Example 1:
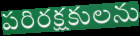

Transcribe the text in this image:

పరిరక్షకులను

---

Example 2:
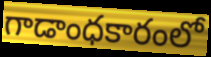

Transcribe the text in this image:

గాడాంధకారంలో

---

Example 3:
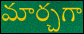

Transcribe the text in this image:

మార్చగా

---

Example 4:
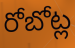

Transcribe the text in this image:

రోబోట్ల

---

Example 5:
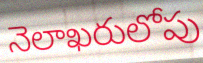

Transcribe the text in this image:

నెలాఖరులోపు